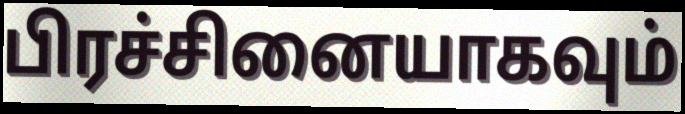
பிரச்சினையாகவும்